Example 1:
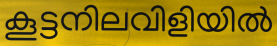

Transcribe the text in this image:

കൂട്ടനിലവിളിയിൽ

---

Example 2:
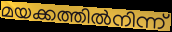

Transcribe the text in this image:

മയക്കത്തിൽനിന്ന്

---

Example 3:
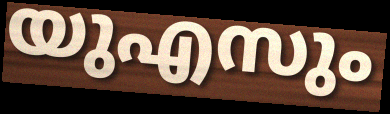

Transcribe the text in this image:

യുഎസും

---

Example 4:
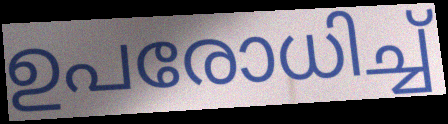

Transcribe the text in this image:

ഉപരോധിച്ച്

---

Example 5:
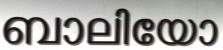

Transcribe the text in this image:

ബാലിയോ